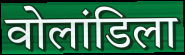
वोलांडिला